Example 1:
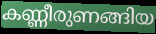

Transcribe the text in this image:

കണ്ണീരുണങ്ങിയ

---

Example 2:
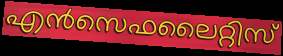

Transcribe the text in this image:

എൻസെഫലൈറ്റിസ്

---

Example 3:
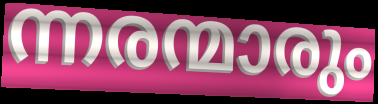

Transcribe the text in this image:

ന്നരന്മാരും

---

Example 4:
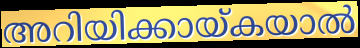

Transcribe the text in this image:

അറിയിക്കായ്കയാൽ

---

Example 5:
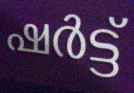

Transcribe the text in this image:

ഷർട്ട്